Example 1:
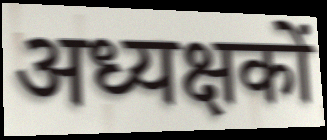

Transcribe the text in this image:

अध्यक्षकों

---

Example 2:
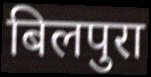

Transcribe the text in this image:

बिलपुरा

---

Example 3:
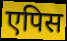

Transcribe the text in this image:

एपिस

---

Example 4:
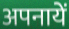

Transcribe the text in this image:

अपनायें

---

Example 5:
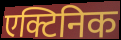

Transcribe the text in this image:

एक्टिनिक